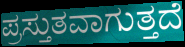
ಪ್ರಸ್ತುತವಾಗುತ್ತದೆ